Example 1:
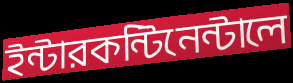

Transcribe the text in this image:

ইন্টারকন্টিনেন্টালে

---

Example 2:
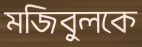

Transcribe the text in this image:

মজিবুলকে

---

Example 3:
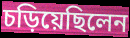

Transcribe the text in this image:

চড়িয়েছিলেন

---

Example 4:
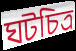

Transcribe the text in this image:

ঘটচিত্র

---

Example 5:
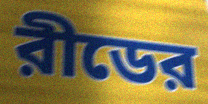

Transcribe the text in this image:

রীডের